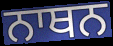
ਨਾਥਨ